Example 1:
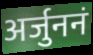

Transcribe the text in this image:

अर्जुननं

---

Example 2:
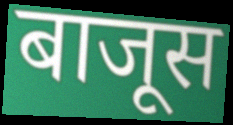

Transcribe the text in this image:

बाजूस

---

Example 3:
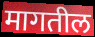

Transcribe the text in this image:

मागतील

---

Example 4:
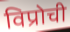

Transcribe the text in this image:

विप्रोची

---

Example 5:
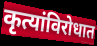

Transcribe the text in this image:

कृत्यांविरोधात